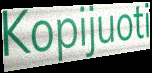
Kopijuoti